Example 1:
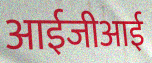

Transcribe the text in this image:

आईजीआई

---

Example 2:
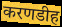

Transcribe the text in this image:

करणडीह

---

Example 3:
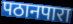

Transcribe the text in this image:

पठानपारा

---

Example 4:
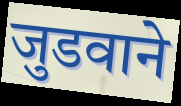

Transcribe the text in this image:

जुडवाने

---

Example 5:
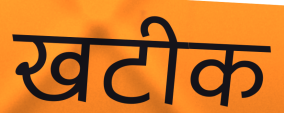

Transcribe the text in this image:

खटीक